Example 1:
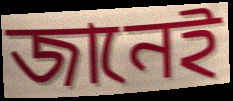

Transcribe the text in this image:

জানেই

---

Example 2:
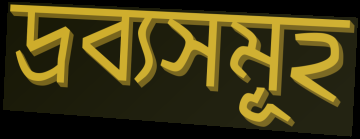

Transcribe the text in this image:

দ্ৰব্যসমূহ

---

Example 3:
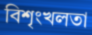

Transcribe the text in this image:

বিশৃংখলতা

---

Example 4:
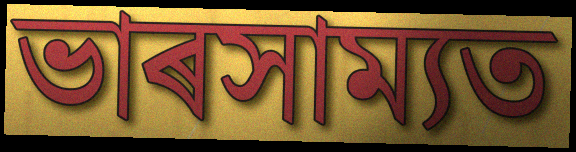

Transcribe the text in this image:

ভাৰসাম্যত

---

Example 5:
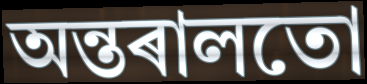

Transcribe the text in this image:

অন্তৰালতো